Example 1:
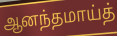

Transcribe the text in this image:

ஆனந்தமாய்த்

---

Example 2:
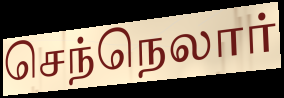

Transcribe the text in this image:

செந்நெலார்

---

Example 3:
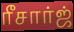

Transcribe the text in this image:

ரீசார்ஜ்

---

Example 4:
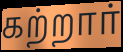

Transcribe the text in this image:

கற்றார்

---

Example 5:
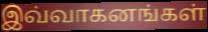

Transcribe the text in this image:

இவ்வாகனங்கள்